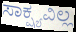
ಸಾಕ್ಷ್ಯವಿಲ್ಲ